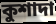
কুশাদা